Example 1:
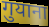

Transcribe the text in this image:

गुयाना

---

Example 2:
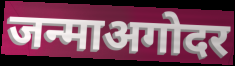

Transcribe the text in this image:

जन्माअगोदर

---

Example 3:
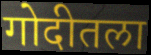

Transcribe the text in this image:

गोदीतला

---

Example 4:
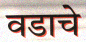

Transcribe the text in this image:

वडाचे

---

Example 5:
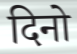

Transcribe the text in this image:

दिनो